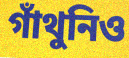
গাঁথুনিও